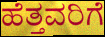
ಹೆತ್ತವರಿಗೆ